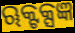
ୠକ୍ଟକ୍ସଜ୍ଞ